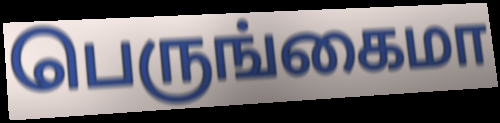
பெருங்கைமா